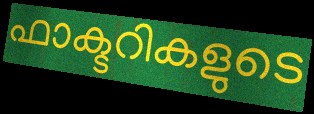
ഫാക്ടറികളുടെ